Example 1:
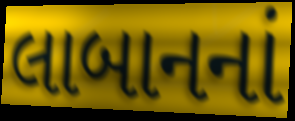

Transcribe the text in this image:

લાબાનનાં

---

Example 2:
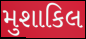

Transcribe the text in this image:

મુશાકિલ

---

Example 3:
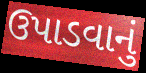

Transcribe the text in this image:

ઉપાડવાનું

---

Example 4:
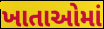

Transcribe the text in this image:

ખાતાઓમાં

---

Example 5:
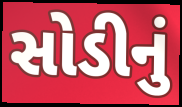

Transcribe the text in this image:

સોડીનું